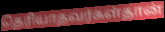
தெரியாதவர்கள்தான்